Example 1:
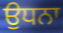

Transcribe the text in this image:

ਉਧਨਾ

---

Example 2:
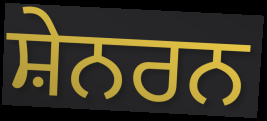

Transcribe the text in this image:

ਸ਼ੇਨਰਨ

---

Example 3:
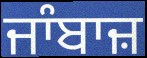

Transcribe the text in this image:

ਜਾੰਬਾਜ਼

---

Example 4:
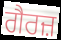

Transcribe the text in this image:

ਗੈਰਜ਼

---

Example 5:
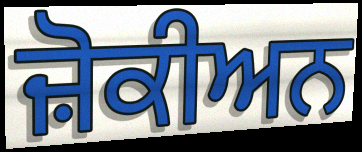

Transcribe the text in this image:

ਜ਼ੋਕੀਅਨ